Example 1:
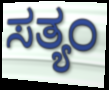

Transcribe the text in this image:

ಸತ್ಯಂ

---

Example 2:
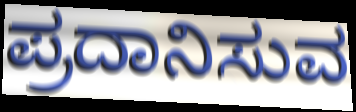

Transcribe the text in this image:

ಪ್ರದಾನಿಸುವ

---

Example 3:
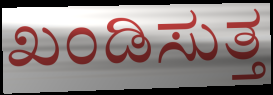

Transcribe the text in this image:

ಖಂಡಿಸುತ್ತ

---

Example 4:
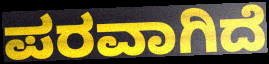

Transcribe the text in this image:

ಪರವಾಗಿದೆ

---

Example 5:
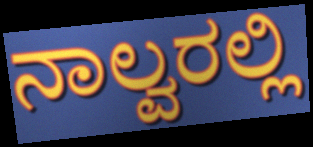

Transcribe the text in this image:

ನಾಲ್ವರಲ್ಲಿ